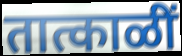
तात्काळीं